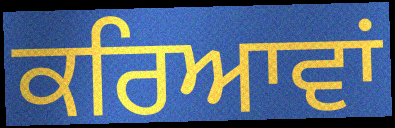
ਕਰਿਆਵਾਂ